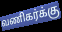
வணிகர்க்கு